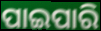
ପାଇପାରି